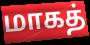
மாகத்